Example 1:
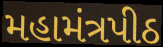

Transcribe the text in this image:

મહામંત્રપીઠ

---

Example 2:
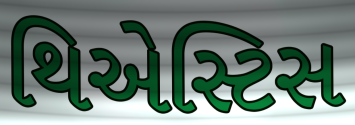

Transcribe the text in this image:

થિએસ્ટિસ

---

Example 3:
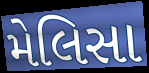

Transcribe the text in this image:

મેલિસા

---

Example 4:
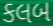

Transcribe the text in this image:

કલબ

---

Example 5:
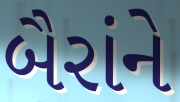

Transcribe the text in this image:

બૈરાંને